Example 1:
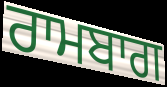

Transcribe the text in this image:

ਰਾਮਬਾਗ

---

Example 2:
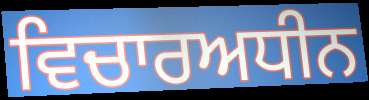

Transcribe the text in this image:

ਵਿਚਾਰਅਧੀਨ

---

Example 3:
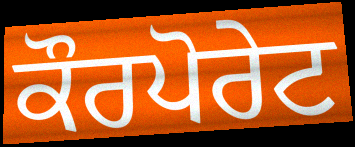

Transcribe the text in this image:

ਕੌਰਪੋਰੇਟ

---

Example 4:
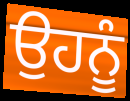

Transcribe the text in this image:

ਉਹਨੂੰ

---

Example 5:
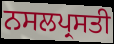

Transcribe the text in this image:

ਨਸਲਪ੍ਰਸਤੀ